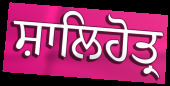
ਸ਼ਾਲਿਹੋਤ੍ਰ